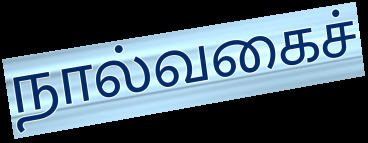
நால்வகைச்